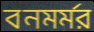
বনমর্মর